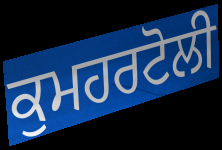
ਕੁਮਹਰਟੋਲੀ